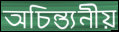
অচিন্ত্যনীয়